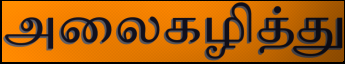
அலைகழித்து